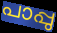
പാപ്പു